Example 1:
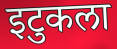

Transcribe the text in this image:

इटुकला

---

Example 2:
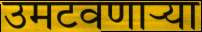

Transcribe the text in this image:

उमटवणार्‍या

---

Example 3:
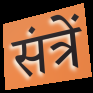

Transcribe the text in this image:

संत्रें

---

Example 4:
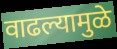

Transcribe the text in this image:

वाढल्यामुळे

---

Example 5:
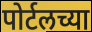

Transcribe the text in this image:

पोर्टलच्या